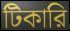
টিকারি